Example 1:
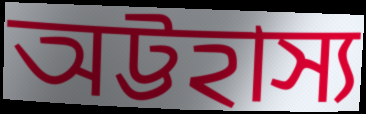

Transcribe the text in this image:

অট্টহাস্য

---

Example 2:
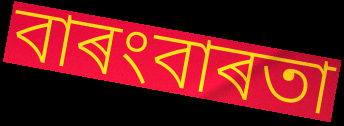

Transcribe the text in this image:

বাৰংবাৰতা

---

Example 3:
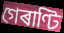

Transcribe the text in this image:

গেৰাণ্টি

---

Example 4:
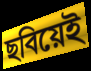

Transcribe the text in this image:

ছবিয়েই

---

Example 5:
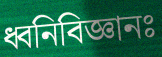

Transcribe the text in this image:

ধ্বনিবিজ্ঞানঃ